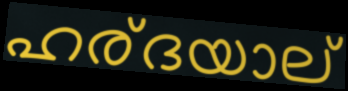
ഹര്ദയാല്